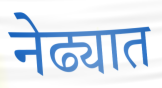
नेढ्यात